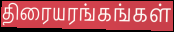
திரையரங்கங்கள்